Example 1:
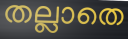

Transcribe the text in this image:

തല്ലാതെ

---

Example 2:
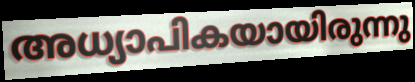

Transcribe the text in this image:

അധ്യാപികയായിരുന്നു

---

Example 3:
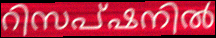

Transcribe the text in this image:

റിസപ്ഷനിൽ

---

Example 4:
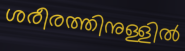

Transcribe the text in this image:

ശരീരത്തിനുള്ളിൽ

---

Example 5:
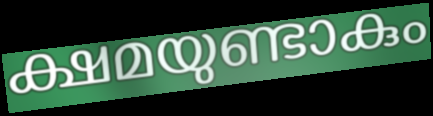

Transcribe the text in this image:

ക്ഷമയുണ്ടാകും